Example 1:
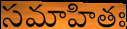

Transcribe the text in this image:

సమాహితః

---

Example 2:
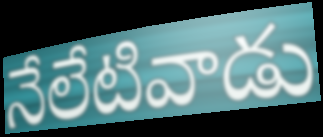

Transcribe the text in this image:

నేలేటివాడు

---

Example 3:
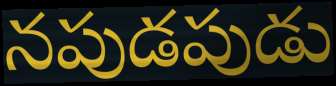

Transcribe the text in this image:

నపుడపుడు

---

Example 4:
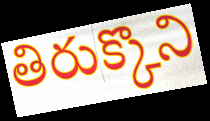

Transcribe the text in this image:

తిరుక్కొని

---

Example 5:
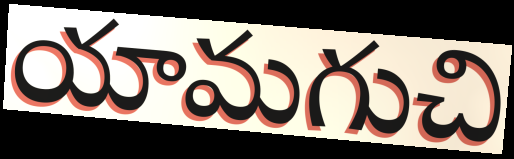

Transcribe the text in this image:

యామగుచి